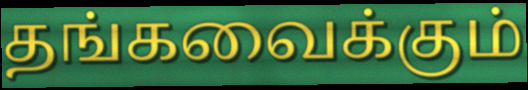
தங்கவைக்கும்